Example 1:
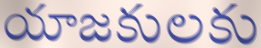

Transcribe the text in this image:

యాజకులకు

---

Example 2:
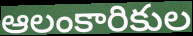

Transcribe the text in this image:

ఆలంకారికుల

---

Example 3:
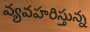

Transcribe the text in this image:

వ్యవహరిస్తున్న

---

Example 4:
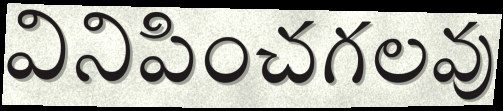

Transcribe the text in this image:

వినిపించగలవు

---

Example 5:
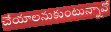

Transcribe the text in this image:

చేయాలనుకుంటున్నావో